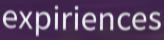
expiriences